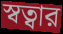
স্বত্বার